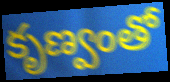
కృణ్వంతో